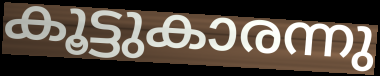
കൂട്ടുകാരന്നു